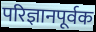
परिज्ञानपूर्वक